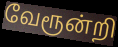
வேரூன்றி